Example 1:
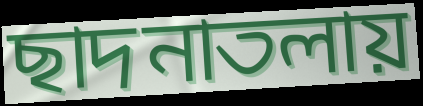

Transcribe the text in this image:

ছাদনাতলায়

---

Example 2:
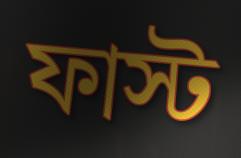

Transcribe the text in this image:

ফাস্ট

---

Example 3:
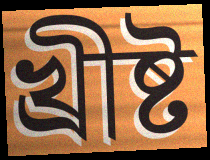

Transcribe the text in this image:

খ্রীষ্ট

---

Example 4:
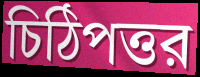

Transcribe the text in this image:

চিঠিপত্তর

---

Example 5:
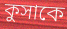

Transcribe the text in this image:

কুসাকে